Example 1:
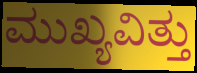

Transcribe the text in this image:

ಮುಖ್ಯವಿತ್ತು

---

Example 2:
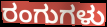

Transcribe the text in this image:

ರಂಗುಗಳು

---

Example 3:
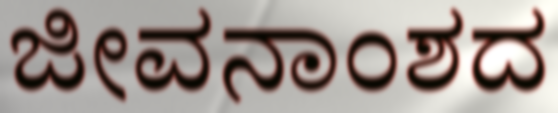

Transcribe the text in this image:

ಜೀವನಾಂಶದ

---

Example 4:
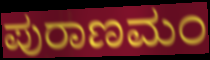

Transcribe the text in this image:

ಪುರಾಣಮಂ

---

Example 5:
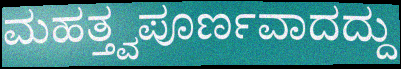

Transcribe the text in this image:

ಮಹತ್ತ್ವಪೂರ್ಣವಾದದ್ದು